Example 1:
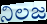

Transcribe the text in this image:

నిలజ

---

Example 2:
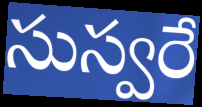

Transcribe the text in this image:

సుస్వరే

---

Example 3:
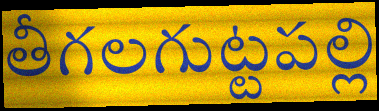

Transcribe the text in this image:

తీగలగుట్టపల్లి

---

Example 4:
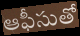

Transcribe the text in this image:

ఆఫీసుతో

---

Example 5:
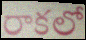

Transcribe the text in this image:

రాకలో